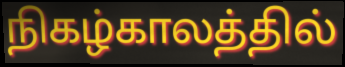
நிகழ்காலத்தில்